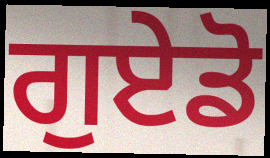
ਗੁਏਡੋ